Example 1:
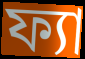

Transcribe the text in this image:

ফ্যা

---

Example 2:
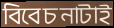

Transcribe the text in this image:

বিবেচনাটাই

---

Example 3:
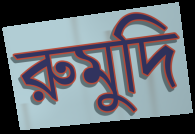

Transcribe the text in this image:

রুমুদি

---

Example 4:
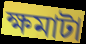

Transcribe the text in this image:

ক্ষমাটা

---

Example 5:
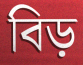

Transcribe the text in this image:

বিড়